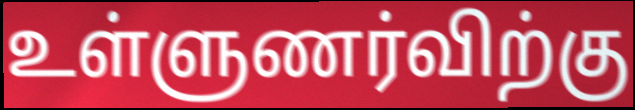
உள்ளுணர்விற்கு